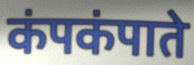
कंपकंपाते